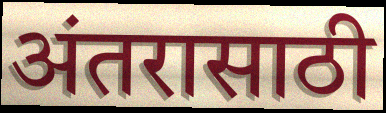
अंतरासाठी